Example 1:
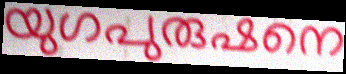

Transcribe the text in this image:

യുഗപുരുഷനെ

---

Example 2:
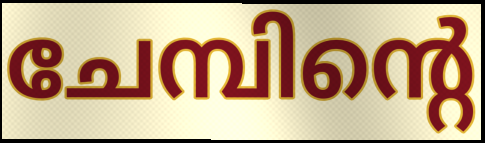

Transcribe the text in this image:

ചേമ്പിന്റെ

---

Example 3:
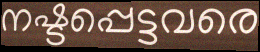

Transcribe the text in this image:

നഷ്ടപ്പെട്ടവരെ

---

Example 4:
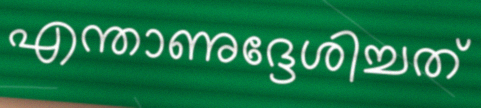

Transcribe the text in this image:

എന്താണുദ്ദേശിച്ചത്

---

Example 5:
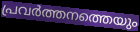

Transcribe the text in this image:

പ്രവർത്തനത്തെയും